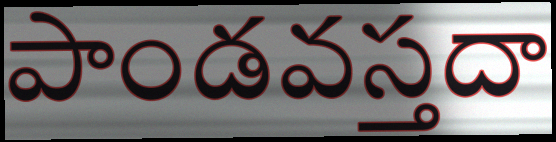
పాండవస్తదా